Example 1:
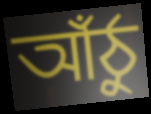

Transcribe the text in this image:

আঁঠু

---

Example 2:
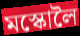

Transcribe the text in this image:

মস্কোলৈ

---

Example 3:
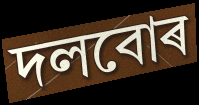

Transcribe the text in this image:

দলবোৰ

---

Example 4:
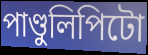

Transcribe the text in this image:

পাণ্ডুলিপিটো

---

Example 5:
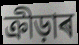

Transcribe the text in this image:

ক্ৰীড়াৰ